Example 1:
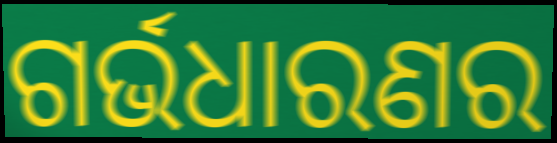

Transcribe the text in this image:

ଗର୍ଭଧାରଣର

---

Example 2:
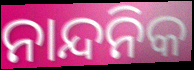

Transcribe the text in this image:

ନାନ୍ଦନିକ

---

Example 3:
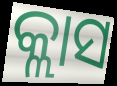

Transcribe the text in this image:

କ୍ଲାସ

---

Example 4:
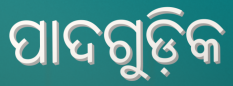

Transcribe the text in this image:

ପାଦଗୁଡ଼ିକ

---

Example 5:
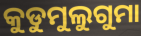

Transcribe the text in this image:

କୁଡୁମୁଲୁଗୁମା